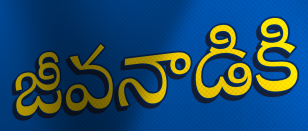
జీవనాడికి